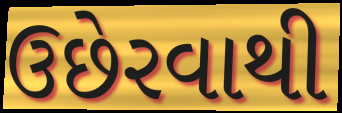
ઉછેરવાથી